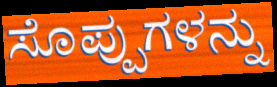
ಸೊಪ್ಪುಗಳನ್ನು